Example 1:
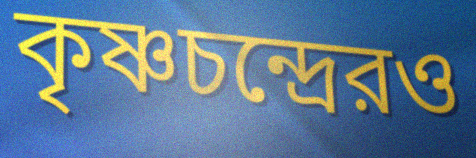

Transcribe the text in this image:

কৃষ্ণচন্দ্রেরও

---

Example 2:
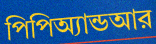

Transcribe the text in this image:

পিপিঅ্যান্ডআর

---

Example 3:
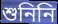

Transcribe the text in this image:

শুনিনি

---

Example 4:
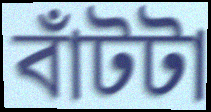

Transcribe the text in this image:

বাঁটটা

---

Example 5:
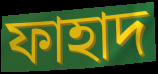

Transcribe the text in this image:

ফাহাদ